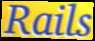
Rails